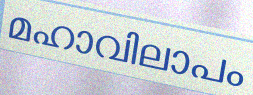
മഹാവിലാപം